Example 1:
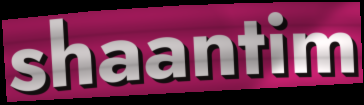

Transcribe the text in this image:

shaantim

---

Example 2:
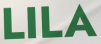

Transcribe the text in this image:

LILA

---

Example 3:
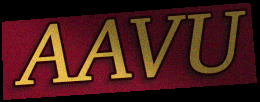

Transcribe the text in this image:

AAVU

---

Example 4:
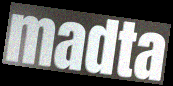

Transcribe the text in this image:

madta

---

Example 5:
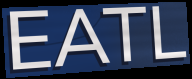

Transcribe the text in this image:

EATL